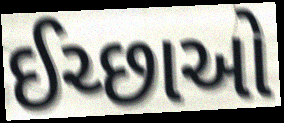
ઈચ્છાઓ